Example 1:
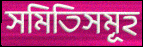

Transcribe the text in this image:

সমিতিসমূহ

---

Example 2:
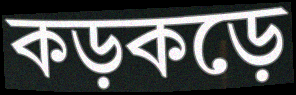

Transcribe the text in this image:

কড়কড়ে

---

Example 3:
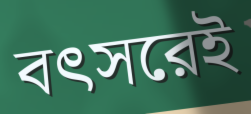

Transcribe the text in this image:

বৎসরেই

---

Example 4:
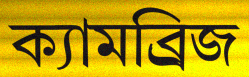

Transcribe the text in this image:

ক্যামব্র্রিজ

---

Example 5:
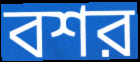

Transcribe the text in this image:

বশর